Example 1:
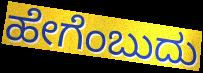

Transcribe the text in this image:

ಹೇಗೆಂಬುದು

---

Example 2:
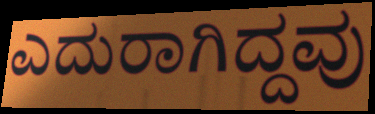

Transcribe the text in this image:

ಎದುರಾಗಿದ್ದವು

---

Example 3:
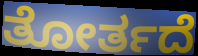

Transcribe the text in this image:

ತೋರ್ತದೆ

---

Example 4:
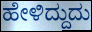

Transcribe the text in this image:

ಹೇಳಿದ್ದುದು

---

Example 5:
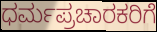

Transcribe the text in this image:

ಧರ್ಮಪ್ರಚಾರಕರಿಗೆ